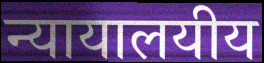
न्यायालयीय